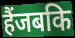
हैंजबकि